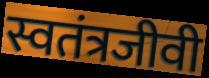
स्वतंत्रजीवी